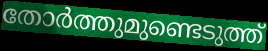
തോർത്തുമുണ്ടെടുത്ത്